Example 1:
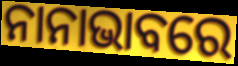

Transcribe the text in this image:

ନାନାଭାବରେ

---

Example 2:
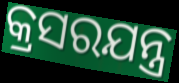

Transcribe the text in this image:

କ୍ରସରଯନ୍ତ୍ର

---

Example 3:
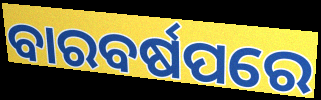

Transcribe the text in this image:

ବାରବର୍ଷପରେ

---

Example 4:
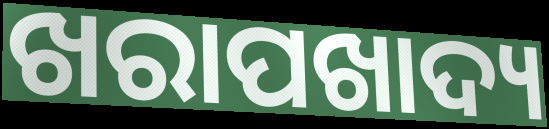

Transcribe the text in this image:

ଖରାପଖାଦ୍ୟ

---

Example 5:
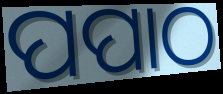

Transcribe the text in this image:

ପପାଠ